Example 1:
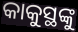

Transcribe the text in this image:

କାକୁସ୍ଥଙ୍କୁ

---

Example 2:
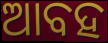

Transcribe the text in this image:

ଆବହ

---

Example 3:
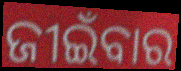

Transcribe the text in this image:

ଜୀଇଁବାର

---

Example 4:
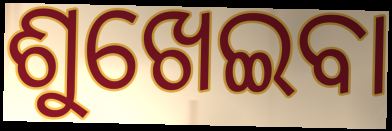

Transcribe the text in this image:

ଶୁଖେଇବା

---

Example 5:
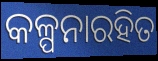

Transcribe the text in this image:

କଳ୍ପନାରହିତ